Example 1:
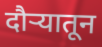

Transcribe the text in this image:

दौर्‍यातून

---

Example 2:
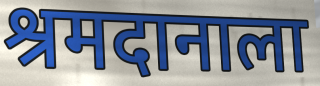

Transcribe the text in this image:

श्रमदानाला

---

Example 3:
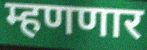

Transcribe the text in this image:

म्हणणार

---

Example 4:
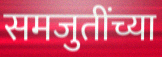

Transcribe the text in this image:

समजुतींच्या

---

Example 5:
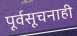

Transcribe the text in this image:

पूर्वसूचनाही